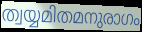
ത്വയ്യമിതമനുരാഗം